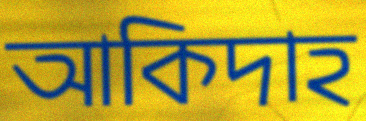
আকিদাহ